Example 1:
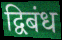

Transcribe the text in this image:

द्विबंध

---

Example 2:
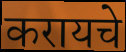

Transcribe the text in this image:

करायचे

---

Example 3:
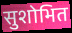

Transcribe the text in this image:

सुशोभित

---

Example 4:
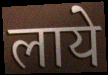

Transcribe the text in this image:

लाये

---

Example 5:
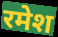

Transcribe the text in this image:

रमेश